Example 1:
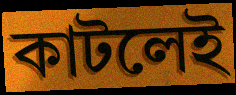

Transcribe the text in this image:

কাটলেই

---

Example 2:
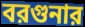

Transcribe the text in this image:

বরগুনার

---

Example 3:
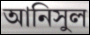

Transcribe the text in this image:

আনিসুল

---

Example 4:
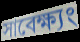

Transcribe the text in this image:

সাবেক্ষ্যং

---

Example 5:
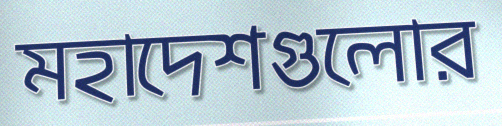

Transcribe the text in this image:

মহাদেশগুলোর